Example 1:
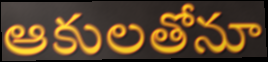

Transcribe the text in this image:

ఆకులతోనూ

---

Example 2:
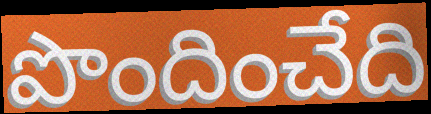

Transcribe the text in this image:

పొందించేది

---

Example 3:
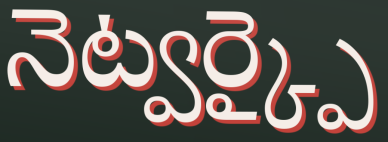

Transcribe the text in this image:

నెట్వర్క్పై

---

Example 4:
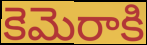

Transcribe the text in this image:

కెమెరాకి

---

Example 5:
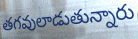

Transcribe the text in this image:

తగవులాడుతున్నారు